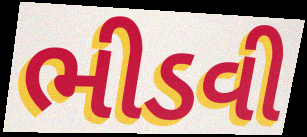
ભીડવી